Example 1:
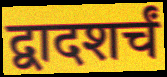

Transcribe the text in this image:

द्वादशर्चं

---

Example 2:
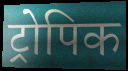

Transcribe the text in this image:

ट्रोपिक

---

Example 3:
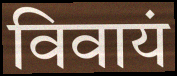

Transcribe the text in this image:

विवायं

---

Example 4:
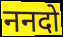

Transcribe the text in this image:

ननदो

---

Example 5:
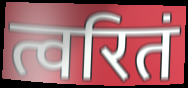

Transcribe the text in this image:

त्वरितं